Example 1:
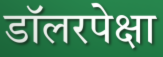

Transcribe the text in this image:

डॉलरपेक्षा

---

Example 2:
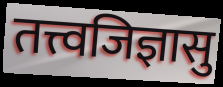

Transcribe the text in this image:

तत्त्वजिज्ञासु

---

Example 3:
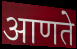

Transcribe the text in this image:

आणते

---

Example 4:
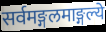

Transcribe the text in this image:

सर्वमङ्गलमाङ्गल्ये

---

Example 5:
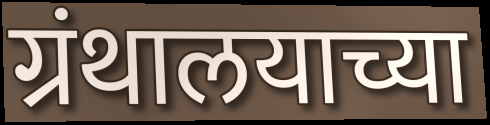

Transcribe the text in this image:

ग्रंथालयाच्या